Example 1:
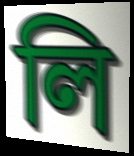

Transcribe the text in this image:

লি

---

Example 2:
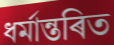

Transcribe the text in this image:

ধৰ্মান্তৰিত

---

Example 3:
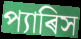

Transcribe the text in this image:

প্যাৰিস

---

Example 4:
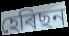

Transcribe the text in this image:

হেৰিছন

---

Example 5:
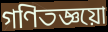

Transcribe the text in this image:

গণিতজ্ঞয়ো